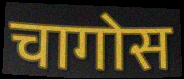
चागोस